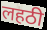
लहठी